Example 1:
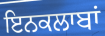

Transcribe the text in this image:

ਇਨਕਲਾਬਾਂ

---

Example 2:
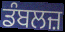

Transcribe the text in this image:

ਡੰਬਲਜ਼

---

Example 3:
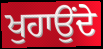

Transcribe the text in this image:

ਖੁਹਾਉਂਦੇ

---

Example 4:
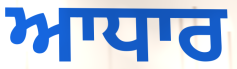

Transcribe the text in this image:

ਆਧਾਰ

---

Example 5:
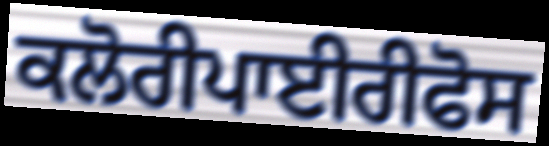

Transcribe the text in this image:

ਕਲੋਰੀਪਾਈਰੀਫੋਸ